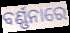
ବର୍ଣ୍ଣନାରେ